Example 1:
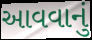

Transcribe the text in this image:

આવવાનું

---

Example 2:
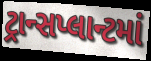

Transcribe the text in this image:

ટ્રાન્સપ્લાન્ટમાં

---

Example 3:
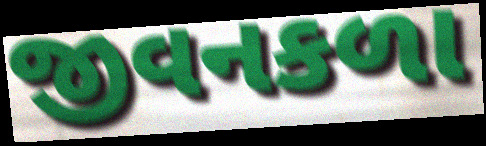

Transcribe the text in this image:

જીવનકળા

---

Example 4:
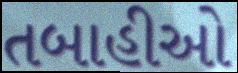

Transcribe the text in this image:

તબાહીઓ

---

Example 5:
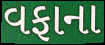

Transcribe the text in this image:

વફાના